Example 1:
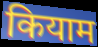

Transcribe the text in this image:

कियाम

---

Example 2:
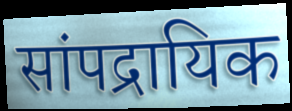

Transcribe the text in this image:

सांपद्रायिक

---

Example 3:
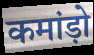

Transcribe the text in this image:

कमांड़ो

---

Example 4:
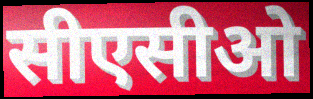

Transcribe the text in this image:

सीएसीओ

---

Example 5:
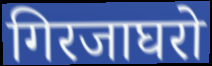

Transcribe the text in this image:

गिरजाघरो